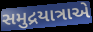
સમુદ્રયાત્રાએ